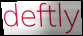
deftly